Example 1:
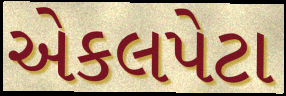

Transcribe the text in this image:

એકલપેટા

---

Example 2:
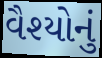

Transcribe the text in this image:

વૈશ્યોનું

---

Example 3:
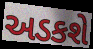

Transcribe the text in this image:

અડકશે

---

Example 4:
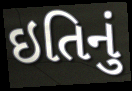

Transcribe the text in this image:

ઇતિનું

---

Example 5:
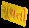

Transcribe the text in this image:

ચૂંથતો